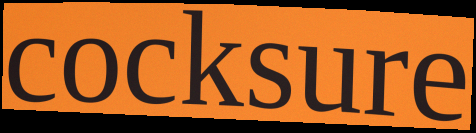
cocksure